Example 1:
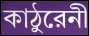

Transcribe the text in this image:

কাঠুরেনী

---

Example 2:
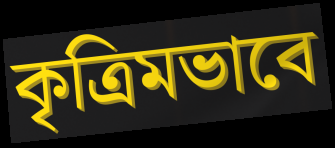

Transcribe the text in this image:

কৃত্রিমভাবে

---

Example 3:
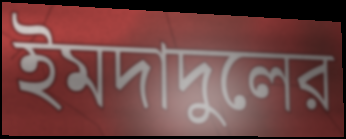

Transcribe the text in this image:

ইমদাদুলের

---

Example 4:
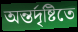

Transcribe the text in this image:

অন্তর্দৃষ্টিতে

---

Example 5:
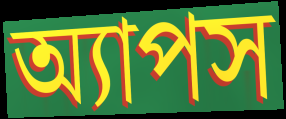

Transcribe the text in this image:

অ্যাপস